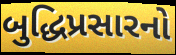
બુદ્ધિપ્રસારનો